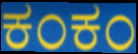
ಕಂಕಂ